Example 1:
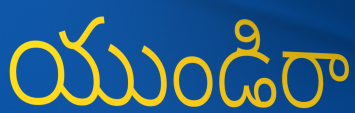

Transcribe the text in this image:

యుండిరా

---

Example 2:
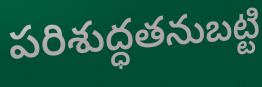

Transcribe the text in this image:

పరిశుద్ధతనుబట్టి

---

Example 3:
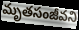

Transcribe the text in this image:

మృతసంజీవని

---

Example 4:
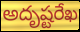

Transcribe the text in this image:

అదృష్టరేఖ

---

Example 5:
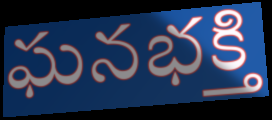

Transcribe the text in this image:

ఘనభక్తి